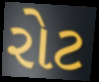
રોટ